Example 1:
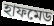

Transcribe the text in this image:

হাফমেড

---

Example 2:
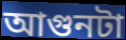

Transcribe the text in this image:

আগুনটা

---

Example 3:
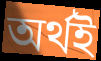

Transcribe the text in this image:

অর্থই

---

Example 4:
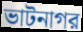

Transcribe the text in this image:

ভাটনাগর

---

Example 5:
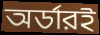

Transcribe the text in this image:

অর্ডারই